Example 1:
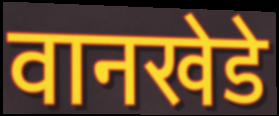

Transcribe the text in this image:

वानखेडे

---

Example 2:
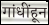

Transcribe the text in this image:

गांधींहून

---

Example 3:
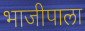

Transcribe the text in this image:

भाजीपाला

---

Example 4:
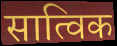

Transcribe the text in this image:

सात्विक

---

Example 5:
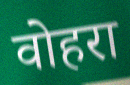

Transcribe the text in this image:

वोहरा